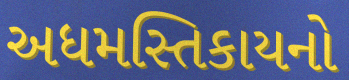
અધમસ્તિકાયનો